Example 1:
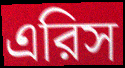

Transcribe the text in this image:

এরিস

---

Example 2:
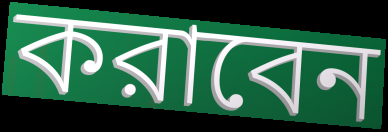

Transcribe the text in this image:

করাবেন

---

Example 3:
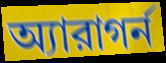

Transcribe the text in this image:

অ্যারাগর্ন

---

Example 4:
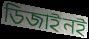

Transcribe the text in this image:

ডিজাইনই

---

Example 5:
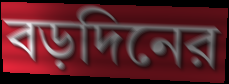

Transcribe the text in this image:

বড়দিনের